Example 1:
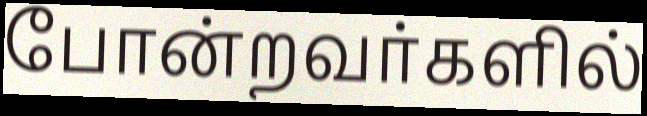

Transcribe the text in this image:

போன்றவர்களில்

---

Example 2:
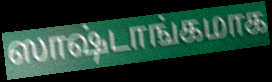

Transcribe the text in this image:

ஸாஷ்டாங்கமாக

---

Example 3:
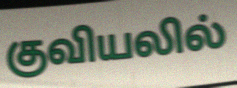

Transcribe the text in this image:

குவியலில்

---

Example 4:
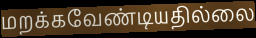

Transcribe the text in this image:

மறக்கவேண்டியதில்லை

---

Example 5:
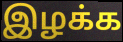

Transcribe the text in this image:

இழக்க